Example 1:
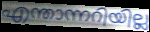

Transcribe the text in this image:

എന്താന്നറിയില്ല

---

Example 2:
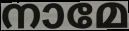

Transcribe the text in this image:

നാമേ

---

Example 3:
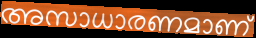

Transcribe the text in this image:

അസാധാരണമാണ്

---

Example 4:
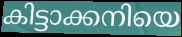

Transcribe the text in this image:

കിട്ടാക്കനിയെ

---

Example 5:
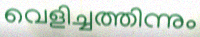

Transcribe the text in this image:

വെളിച്ചത്തിന്നും